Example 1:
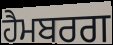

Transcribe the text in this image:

ਹੈਮਬਰਗ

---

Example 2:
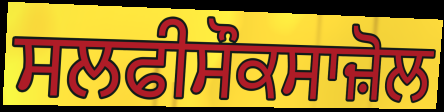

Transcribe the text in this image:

ਸਲਫੀਸੌਕਸਾਜ਼ੋਲ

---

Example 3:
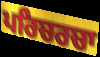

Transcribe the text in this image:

ਪਰਿਚਰਚਾ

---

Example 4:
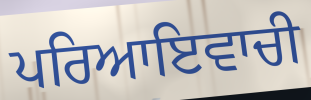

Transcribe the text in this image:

ਪਰਿਆਇਵਾਚੀ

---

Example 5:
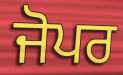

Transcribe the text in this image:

ਜੋਪਰ